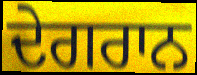
ਦੇਗਰਾਨ